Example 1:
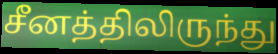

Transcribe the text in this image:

சீனத்திலிருந்து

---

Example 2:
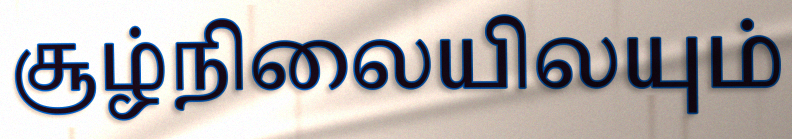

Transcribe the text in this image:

சூழ்நிலையிலயும்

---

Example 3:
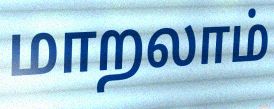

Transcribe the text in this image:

மாறலாம்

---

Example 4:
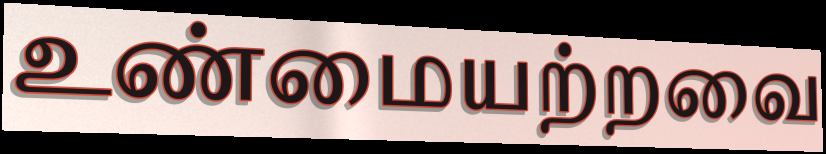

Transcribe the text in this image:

உண்மையற்றவை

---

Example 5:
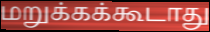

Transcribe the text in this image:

மறுக்கக்கூடாது